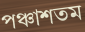
পঞ্চাশতম